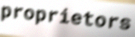
proprietors